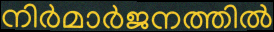
നിർമാർജനത്തിൽ